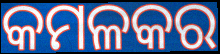
କମଳକର